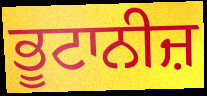
ਭੂਟਾਨੀਜ਼